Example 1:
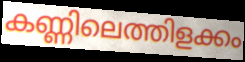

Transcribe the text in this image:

കണ്ണിലെത്തിളക്കം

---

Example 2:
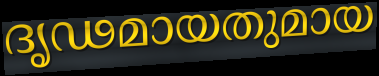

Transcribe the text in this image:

ദൃഢമായതുമായ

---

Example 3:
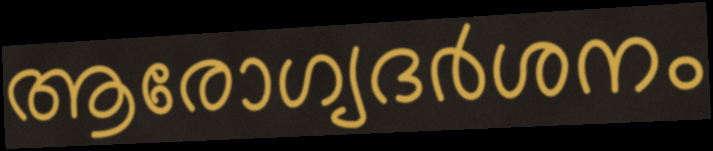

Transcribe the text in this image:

ആരോഗ്യദർശനം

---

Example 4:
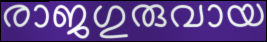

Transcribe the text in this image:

രാജഗുരുവായ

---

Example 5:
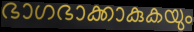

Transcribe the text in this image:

ഭാഗഭാക്കാകുകയും